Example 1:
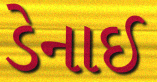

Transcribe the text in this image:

ડેનાઈ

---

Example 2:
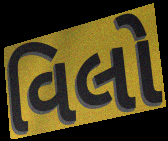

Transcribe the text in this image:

વિલો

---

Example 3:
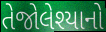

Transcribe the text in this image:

તેજોલેશ્યાનો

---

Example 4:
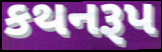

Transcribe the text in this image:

કથનરૂપ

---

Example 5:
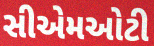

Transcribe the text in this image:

સીએમઓટી